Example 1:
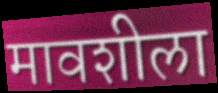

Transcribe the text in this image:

मावशीला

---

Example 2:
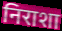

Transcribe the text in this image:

निराशा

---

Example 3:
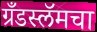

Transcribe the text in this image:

ग्रँडस्लॅमचा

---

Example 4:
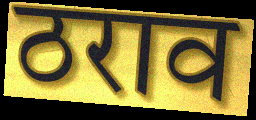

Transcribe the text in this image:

ठराव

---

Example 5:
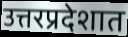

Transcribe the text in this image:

उत्तरप्रदेशात